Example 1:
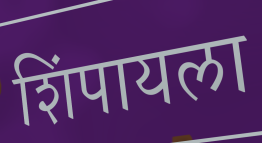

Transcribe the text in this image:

शिंपायला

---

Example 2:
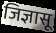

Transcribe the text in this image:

जिज्ञासू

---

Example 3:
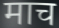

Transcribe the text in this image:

माच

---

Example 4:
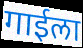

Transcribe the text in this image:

गाईला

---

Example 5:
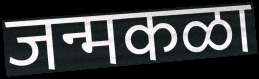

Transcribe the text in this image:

जन्मकळा